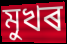
মুখৰ